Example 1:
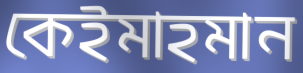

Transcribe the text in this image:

কেইমাহমান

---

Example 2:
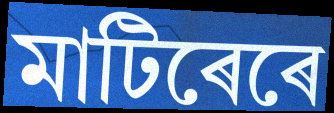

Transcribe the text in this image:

মাটিৰেৰে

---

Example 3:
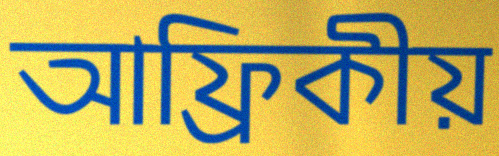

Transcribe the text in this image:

আফ্ৰিকীয়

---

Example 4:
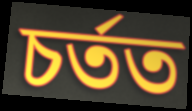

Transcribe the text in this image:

চৰ্তত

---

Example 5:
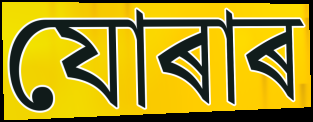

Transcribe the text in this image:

যোৰাৰ